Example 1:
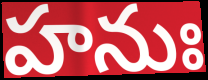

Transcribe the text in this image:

హనుః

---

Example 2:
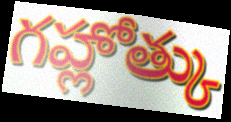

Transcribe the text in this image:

గహ్లోత్కు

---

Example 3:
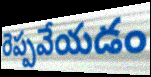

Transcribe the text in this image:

రెప్పవేయడం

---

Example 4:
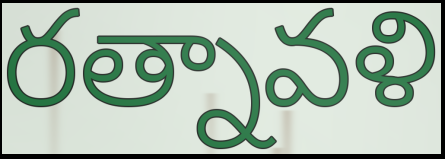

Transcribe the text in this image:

రత్నావళి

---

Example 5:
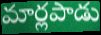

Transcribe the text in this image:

మార్లపాడు